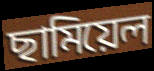
ছামিয়েল